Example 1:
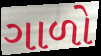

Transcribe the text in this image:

ગાળો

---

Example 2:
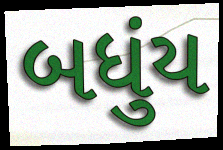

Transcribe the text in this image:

બધુંય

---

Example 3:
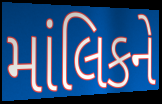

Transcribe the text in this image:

માંલિકને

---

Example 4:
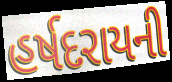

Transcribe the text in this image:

હર્ષદરાયની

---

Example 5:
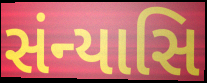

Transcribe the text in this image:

સંન્યાસિ